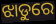
ଝାଡୁରେ